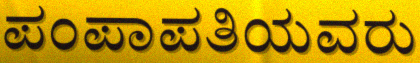
ಪಂಪಾಪತಿಯವರು